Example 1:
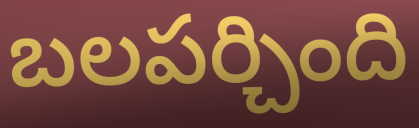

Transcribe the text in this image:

బలపర్చింది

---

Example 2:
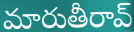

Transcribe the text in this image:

మారుతీరావ్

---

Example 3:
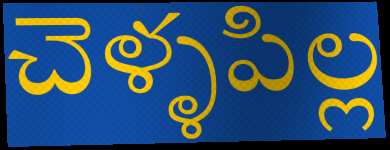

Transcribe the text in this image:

చెళ్ళపిల్ల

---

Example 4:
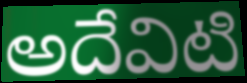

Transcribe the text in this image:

అదేవిటి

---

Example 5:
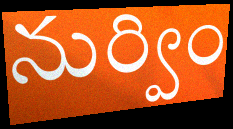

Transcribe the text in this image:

నుర్విం